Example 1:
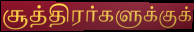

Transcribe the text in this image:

சூத்திரர்களுக்குக்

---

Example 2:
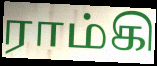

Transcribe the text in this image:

ராம்கி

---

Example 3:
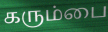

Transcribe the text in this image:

கரும்பை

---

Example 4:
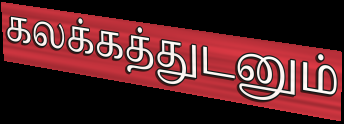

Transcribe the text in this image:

கலக்கத்துடனும்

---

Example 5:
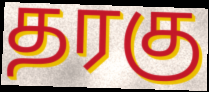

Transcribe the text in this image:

தரகு